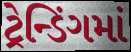
ટ્રેન્ડિંગમાં